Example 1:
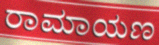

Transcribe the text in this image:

ರಾಮಾಯಣ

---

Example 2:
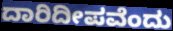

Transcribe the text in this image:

ದಾರಿದೀಪವೆಂದು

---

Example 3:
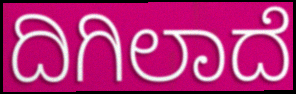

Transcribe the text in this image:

ದಿಗಿಲಾದೆ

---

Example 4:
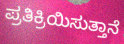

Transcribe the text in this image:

ಪ್ರತಿಕ್ರಿಯಿಸುತ್ತಾನೆ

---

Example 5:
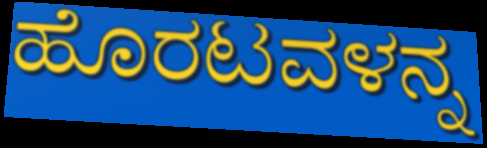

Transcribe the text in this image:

ಹೊರಟವಳನ್ನ